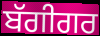
ਬੱਗੀਗਰ